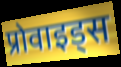
प्रोवाइड्स